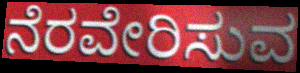
ನೆರವೇರಿಸುವ